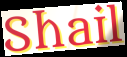
Shail